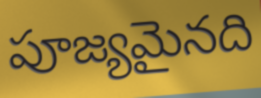
పూజ్యమైనది